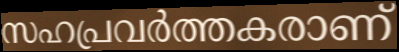
സഹപ്രവർത്തകരാണ്